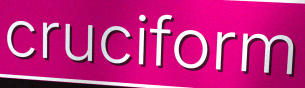
cruciform